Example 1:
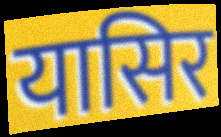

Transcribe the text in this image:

यासिर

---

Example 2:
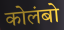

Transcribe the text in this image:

कोलंबो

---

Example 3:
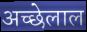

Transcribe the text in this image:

अच्छेलाल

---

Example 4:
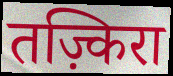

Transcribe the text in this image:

तज़्किरा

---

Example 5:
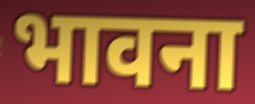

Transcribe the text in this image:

भावना